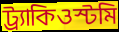
ট্র্যাকিওস্টমি